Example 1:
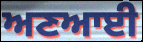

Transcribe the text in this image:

ਅਣਆਈ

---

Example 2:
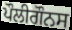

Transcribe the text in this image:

ਪੌਲੀਗੌਨਸ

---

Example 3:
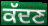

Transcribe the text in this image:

ਕੱਦਣ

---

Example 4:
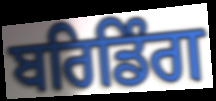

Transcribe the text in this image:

ਬਰਿਡਿੰਗ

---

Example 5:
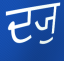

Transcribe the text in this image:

ਦ੍ਯੁ